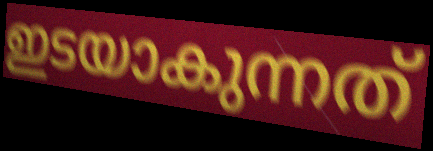
ഇടയാകുന്നത്